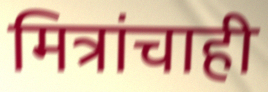
मित्रांचाही